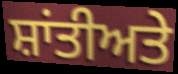
ਸ਼ਾਂਤੀਅਤੇ